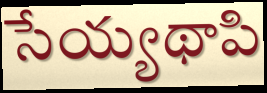
సేయ్యథాపి